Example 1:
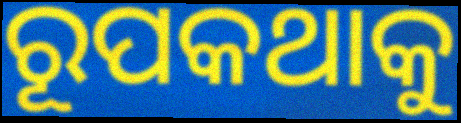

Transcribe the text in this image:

ରୂପକଥାକୁ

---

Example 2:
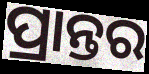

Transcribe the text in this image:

ପ୍ରାନ୍ତର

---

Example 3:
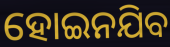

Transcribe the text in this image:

ହୋଇନଯିବ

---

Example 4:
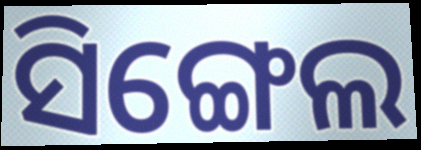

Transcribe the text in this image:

ସିଙ୍ଗେଲ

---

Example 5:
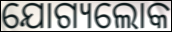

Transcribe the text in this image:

ଯୋଗ୍ୟଲୋକ